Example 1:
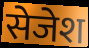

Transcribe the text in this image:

सेजेश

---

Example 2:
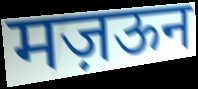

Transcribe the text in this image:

मज़ऊन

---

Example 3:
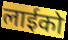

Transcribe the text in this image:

लाईको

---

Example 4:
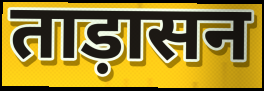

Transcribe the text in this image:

ताड़ासन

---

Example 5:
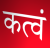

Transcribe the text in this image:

कत्वं